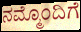
ನಮ್ಮೊಂದಿಗೆ